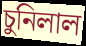
চুনিলাল